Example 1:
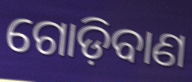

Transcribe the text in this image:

ଗୋଡ଼ିବାଣ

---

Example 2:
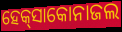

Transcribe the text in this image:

ହେକ୍‌ସାକୋନାଜଲ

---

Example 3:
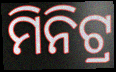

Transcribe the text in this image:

ମିନିଟ୍ର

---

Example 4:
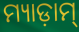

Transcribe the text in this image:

ମ୍ୟାଡ଼ାମ୍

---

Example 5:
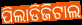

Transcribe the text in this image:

ପିଲାଡିଜିଟାଲ